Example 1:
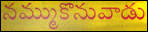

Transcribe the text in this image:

నమ్ముకొనువాడు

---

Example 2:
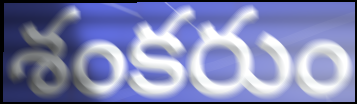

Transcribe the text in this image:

శంకరుం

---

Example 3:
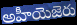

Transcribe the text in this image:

అహీయెజెరు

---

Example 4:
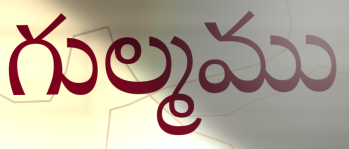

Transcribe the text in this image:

గుల్మము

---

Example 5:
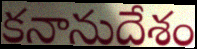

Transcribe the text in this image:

కనానుదేశం